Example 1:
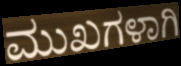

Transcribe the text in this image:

ಮುಖಗಳಾಗಿ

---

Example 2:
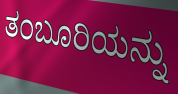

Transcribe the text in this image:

ತಂಬೂರಿಯನ್ನು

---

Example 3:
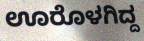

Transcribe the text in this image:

ಊರೊಳಗಿದ್ದ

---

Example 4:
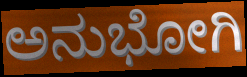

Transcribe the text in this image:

ಅನುಭೋಗಿ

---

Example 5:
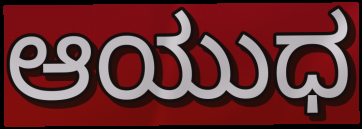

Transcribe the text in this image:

ಆಯುಧ